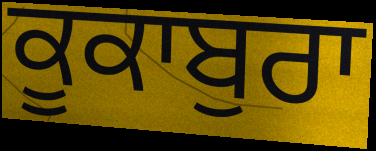
ਕੂਕਾਬੁਰਾ